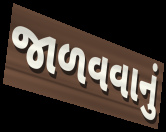
જાળવવાનું